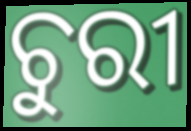
ଚୁରୀ